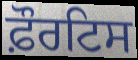
ਫ਼ੌਰਟਿਸ